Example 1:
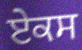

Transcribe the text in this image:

ਏਕਸ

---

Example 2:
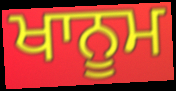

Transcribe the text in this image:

ਖਾਨੂਮ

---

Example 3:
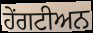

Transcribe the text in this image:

ਹੇਂਗਟੀਅਨ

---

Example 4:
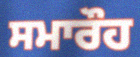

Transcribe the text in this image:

ਸਮਾਰੌਹ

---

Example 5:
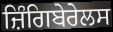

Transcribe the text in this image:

ਜ਼ਿੰਗਿਬੇਰੇਲਸ